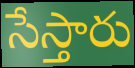
సేస్తారు